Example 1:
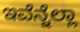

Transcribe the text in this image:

ಇವೆನ್ನೆಲ್ಲಾ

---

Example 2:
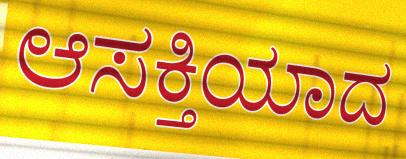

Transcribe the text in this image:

ಆಸಕ್ತಿಯಾದ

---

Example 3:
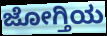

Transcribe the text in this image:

ಜೋಗ್ತಿಯ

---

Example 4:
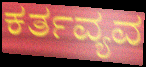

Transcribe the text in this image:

ಕರ್ತವ್ಯವ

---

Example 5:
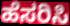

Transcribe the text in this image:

ಹೆಸರಿಸಿ